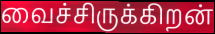
வைச்சிருக்கிறன்